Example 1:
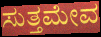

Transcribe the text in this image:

ಸುತ್ತಮೇವ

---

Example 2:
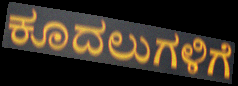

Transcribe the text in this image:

ಕೂದಲುಗಳಿಗೆ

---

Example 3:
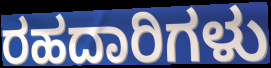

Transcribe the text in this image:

ರಹದಾರಿಗಳು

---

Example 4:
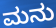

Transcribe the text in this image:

ಮನು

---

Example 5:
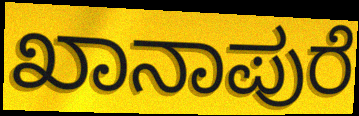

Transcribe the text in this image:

ಖಾನಾಪುರೆ